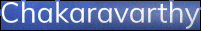
Chakaravarthy